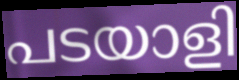
പടയാളി